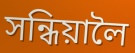
সন্ধিয়ালৈ